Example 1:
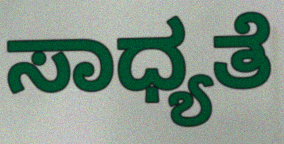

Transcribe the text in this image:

ಸಾಧ್ಯತೆ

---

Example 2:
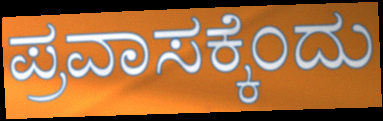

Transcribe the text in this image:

ಪ್ರವಾಸಕ್ಕೆಂದು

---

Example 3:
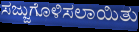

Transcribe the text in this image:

ಸಜ್ಜುಗೊಳಿಸಲಾಯಿತು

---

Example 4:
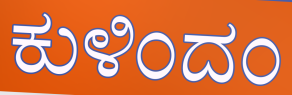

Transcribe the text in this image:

ಕುಳಿಂದಂ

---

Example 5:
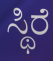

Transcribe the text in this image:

ಸ್ಥಿರೆ